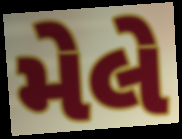
મેલે